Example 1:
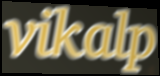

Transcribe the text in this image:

vikalp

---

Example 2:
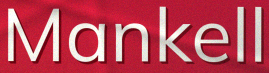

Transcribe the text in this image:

Mankell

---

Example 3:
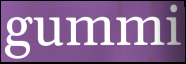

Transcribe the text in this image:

gummi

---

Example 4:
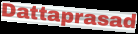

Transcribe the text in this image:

Dattaprasad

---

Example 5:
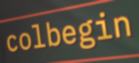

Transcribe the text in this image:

colbegin